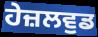
ਹੇਜ਼ਲਵੁਡ